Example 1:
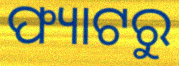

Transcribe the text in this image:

ଫ୍ୟାଟରୁ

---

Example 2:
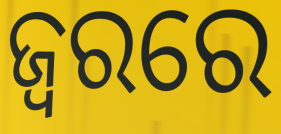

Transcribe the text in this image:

ଜ୍ବରରେ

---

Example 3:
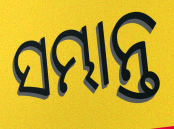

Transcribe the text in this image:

ସମ୍ଭାନ୍ତ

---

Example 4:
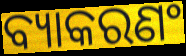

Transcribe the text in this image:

ବ୍ୟାକରଣଂ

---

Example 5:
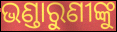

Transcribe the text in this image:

ଭଣ୍ଡାରୁଣୀଙ୍କୁ